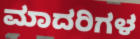
ಮಾದರಿಗಳ